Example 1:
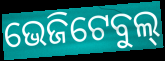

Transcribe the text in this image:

ଭେଜିଟେବୁଲ୍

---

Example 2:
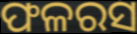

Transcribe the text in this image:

ଫଳରସ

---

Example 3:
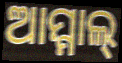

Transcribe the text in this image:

ଆମ୍ମାଲ୍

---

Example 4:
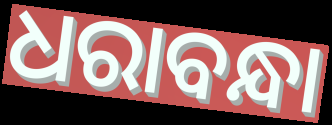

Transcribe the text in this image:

ଧରାବନ୍ଧା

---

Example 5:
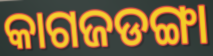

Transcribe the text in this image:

କାଗଜଡଙ୍ଗା